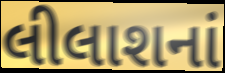
લીલાશનાં